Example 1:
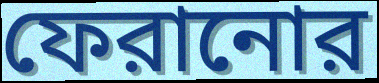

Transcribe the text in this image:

ফেরানোর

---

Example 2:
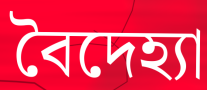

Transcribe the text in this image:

বৈদেহ্যা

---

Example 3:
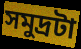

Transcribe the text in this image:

সমুদ্রটা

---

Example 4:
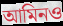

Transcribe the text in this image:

আমিনও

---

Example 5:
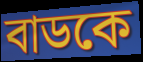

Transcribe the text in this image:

বাডকে